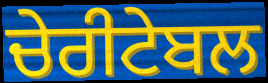
ਚੇਰੀਟੇਬਲ